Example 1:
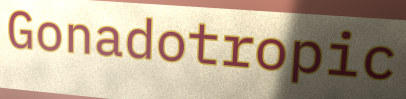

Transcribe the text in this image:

Gonadotropic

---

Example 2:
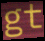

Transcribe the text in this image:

gt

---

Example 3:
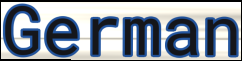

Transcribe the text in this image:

German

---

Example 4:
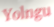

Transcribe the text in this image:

Yolngu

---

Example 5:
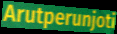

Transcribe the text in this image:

Arutperunjoti